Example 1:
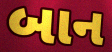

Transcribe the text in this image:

બાન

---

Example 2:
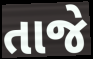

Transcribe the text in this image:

તાજે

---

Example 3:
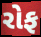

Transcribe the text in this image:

રોફ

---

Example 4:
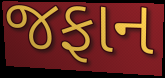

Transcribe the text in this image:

જફાન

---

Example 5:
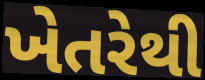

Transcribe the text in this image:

ખેતરેથી